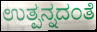
ಉತ್ಪನ್ನದಂತೆ